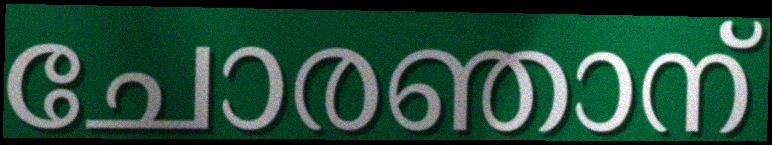
ചോരഞാന്